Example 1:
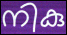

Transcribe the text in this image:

നികു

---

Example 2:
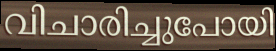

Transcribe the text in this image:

വിചാരിച്ചുപോയി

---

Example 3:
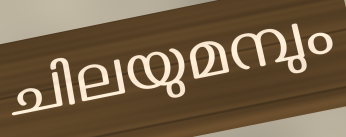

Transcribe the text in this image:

ചിലയുമമ്പും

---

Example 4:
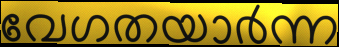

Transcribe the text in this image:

വേഗതയാർന്ന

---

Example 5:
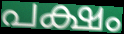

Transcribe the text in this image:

പക്ഷം